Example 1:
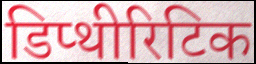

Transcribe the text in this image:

डिप्थीरिटिक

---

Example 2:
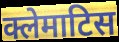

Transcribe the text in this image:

क्लेमाटिस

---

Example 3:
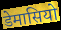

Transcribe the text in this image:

डेमासियो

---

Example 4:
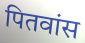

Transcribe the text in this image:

पितवांस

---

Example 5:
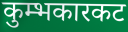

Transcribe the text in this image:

कुम्भकारकट